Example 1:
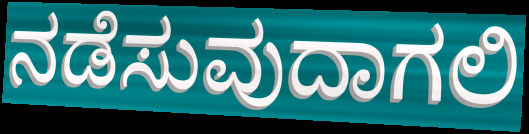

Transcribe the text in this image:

ನಡೆಸುವುದಾಗಲಿ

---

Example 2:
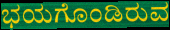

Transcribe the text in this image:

ಭಯಗೊಂಡಿರುವ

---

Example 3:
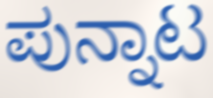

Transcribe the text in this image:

ಪುನ್ನಾಟ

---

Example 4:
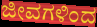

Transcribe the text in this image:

ಜೀವಗಳಿಂದ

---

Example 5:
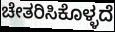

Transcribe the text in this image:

ಚೇತರಿಸಿಕೊಳ್ಳದೆ